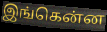
இங்கென்ன